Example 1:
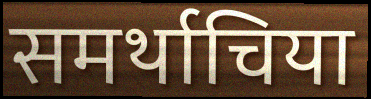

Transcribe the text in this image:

समर्थाचिया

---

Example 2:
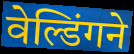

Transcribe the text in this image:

वेल्डिंगने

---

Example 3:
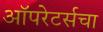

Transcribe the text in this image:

ऑपरेटर्सचा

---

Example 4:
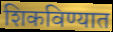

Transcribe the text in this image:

शिकविण्यात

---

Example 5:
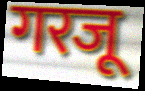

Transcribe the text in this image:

गरजू